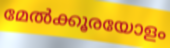
മേൽക്കൂരയോളം